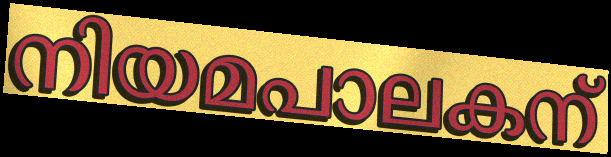
നിയമപാലകന്